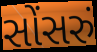
સોંસરું